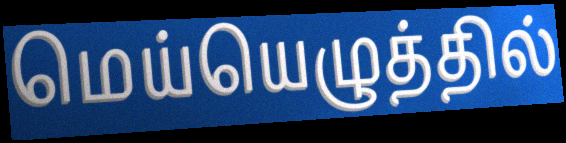
மெய்யெழுத்தில்